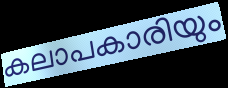
കലാപകാരിയും